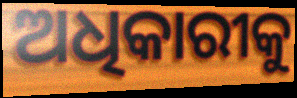
ଅଧିକାରୀକୁ